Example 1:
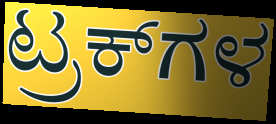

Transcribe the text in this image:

ಟ್ರಕ್‌ಗಳ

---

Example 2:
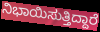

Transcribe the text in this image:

ನಿಭಾಯಿಸುತ್ತಿದ್ದಾರೆ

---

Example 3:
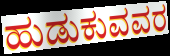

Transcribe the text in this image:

ಹುಡುಕುವವರ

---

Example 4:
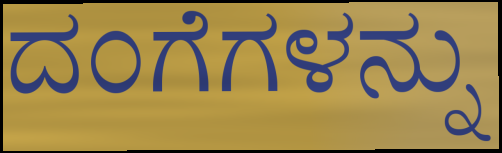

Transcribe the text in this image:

ದಂಗೆಗಳನ್ನು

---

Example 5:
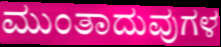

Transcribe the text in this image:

ಮುಂತಾದುವುಗಳ